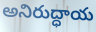
అనిరుద్ధాయ